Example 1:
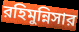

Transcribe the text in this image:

রহিমুন্নিসার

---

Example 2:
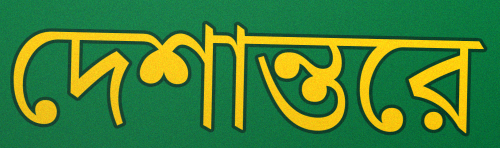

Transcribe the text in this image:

দেশান্তরে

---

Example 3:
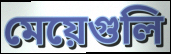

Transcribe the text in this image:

মেয়েগুলি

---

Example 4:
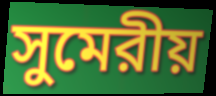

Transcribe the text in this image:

সুমেরীয়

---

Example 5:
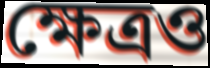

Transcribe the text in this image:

ক্ষেত্রও